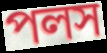
পলস